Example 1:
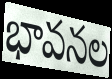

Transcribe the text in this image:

భావనల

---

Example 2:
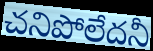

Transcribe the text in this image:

చనిపోలేదనీ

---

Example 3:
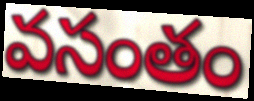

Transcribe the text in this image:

వసంతం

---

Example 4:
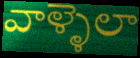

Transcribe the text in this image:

వాళ్ళెలా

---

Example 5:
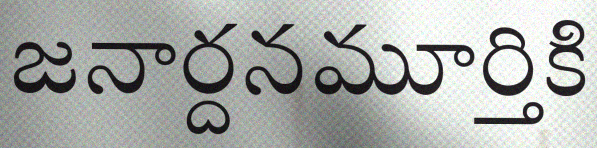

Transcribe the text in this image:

జనార్దనమూర్తికి